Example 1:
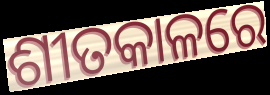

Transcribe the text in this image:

ଶୀତକାଳରେ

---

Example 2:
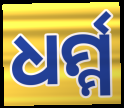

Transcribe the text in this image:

ଧର୍ମ୍ମ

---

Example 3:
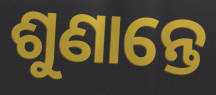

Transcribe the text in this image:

ଶୁଣାନ୍ତେ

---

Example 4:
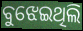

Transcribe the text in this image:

ବୁଝେଇଥିଲି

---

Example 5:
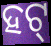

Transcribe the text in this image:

ହଟ୍